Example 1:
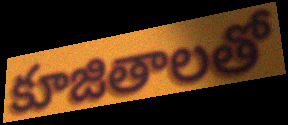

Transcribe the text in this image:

కూజితాలతో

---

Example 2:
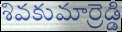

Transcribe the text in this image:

శివకుమార్రెడ్డి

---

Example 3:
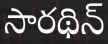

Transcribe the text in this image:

సారథిన్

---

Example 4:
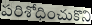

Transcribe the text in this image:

పరిశోధించుకొని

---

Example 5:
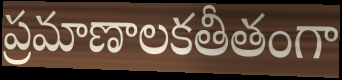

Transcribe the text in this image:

ప్రమాణాలకతీతంగా